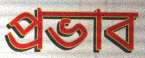
প্রভাব